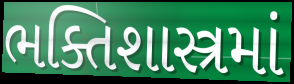
ભક્તિશાસ્ત્રમાં